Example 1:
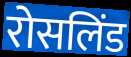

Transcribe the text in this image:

रोसलिंड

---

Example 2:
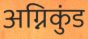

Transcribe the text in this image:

अग्निकुंड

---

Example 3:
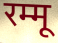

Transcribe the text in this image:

रम्मू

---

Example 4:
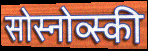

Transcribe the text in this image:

सोस्नोव्स्की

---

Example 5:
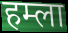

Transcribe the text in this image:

हम्ला